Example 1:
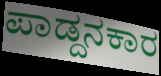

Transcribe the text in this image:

ಪಾಡ್ದನಕಾರ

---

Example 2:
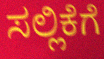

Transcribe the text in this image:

ಸಲ್ಲಿಕೆಗೆ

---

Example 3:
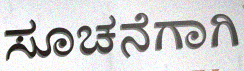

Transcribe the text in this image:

ಸೂಚನೆಗಾಗಿ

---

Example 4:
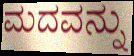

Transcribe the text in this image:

ಮದವನ್ನು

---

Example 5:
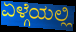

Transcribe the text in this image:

ಏಳ್ಗೆಯಲ್ಲಿ